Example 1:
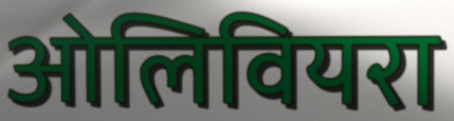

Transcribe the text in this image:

ओलिवियरा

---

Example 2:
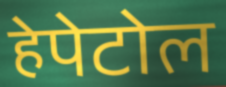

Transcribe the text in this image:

हेपेटोल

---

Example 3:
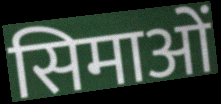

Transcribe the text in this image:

सिमाओं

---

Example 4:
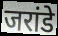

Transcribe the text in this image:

जरांडे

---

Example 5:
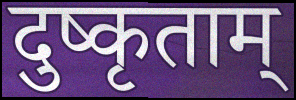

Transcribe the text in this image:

दुष्कृताम्